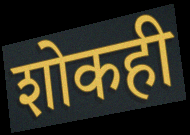
शोकही